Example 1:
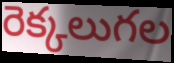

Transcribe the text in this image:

రెక్కలుగల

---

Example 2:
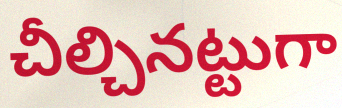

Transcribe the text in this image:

చీల్చినట్టుగా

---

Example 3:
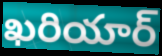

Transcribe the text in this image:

ఖరియార్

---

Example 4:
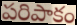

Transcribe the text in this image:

పరిపాకం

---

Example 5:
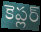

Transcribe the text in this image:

కెప్లర్